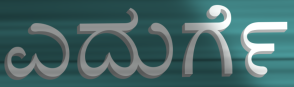
ಎದುರ್ಗೆ